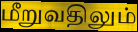
மீறுவதிலும்